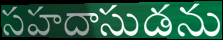
సహదాసుడను